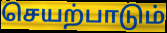
செயற்பாடும்